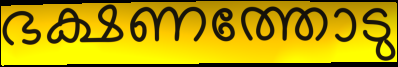
ഭക്ഷണത്തോടു